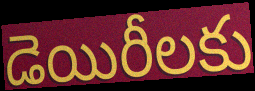
డెయిరీలకు